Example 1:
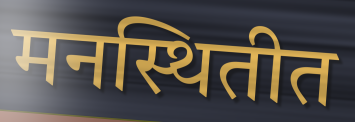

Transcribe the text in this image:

मनस्थितीत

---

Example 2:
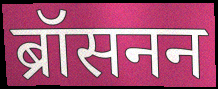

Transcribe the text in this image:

ब्रॉसनन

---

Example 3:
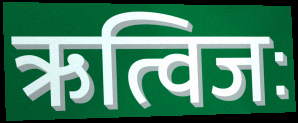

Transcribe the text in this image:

ऋत्विजः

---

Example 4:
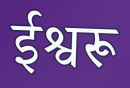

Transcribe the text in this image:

ईश्वरू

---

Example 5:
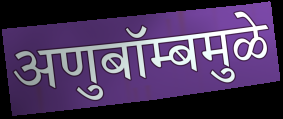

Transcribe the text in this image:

अणुबॉम्बमुळे